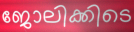
ജോലിക്കിടെ